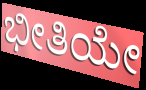
ಭೀತಿಯೇ